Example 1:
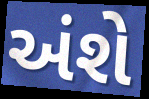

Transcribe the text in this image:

અંશે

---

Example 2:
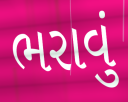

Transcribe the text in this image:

ભરાવું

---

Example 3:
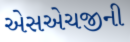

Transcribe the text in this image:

એસએચજીની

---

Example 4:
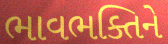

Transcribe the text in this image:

ભાવભક્તિને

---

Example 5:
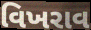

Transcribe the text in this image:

વિખરાવ